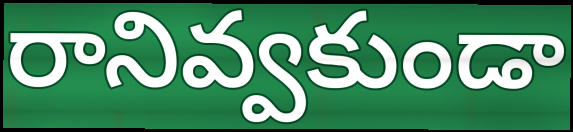
రానివ్వకుండా